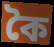
কৈ